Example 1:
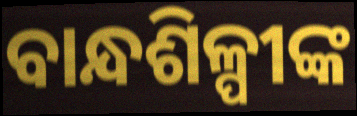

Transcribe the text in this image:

ବାନ୍ଧଶିଳ୍ପୀଙ୍କ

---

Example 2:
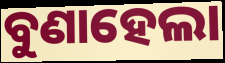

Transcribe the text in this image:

ବୁଣାହେଲା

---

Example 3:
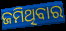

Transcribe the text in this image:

ଜମିଥିବାର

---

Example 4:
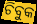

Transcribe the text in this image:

ଚିବୁକ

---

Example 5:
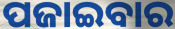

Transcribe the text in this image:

ପଜାଇବାର